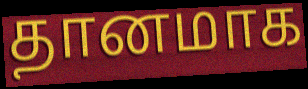
தானமாக